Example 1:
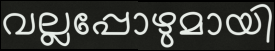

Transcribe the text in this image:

വല്ലപ്പോഴുമായി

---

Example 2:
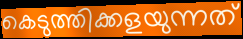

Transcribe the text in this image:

കെടുത്തിക്കളയുന്നത്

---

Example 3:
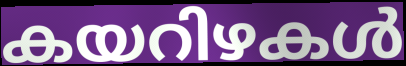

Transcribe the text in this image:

കയറിഴകൾ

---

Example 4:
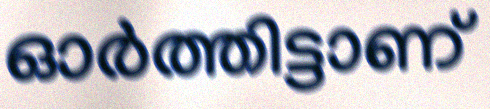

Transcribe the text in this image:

ഓർത്തിട്ടാണ്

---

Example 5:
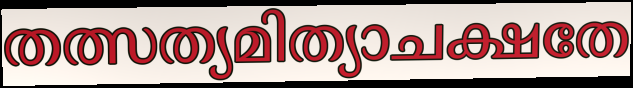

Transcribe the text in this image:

തത്സത്യമിത്യാചക്ഷതേ